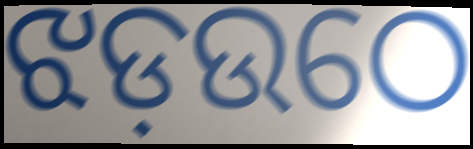
ଝଡ଼ଉଠେ